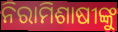
ନିରାମିଶାଷୀଙ୍କୁ